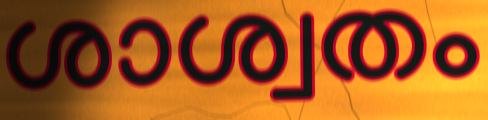
ശാശ്വതം